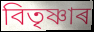
বিতৃষ্ণাৰ